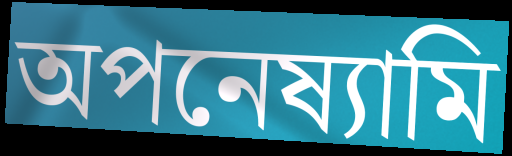
অপনেষ্যামি